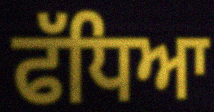
ਫੱਧਿਆ